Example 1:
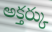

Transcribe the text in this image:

అక్తర్కు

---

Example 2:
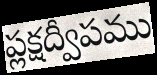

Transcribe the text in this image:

ప్లక్షద్వీపము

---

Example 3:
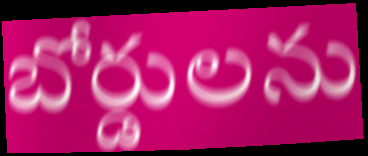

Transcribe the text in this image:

బోర్డులను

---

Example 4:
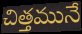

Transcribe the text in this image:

చిత్తమునే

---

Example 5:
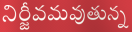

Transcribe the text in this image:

నిర్జీవమవుతున్న